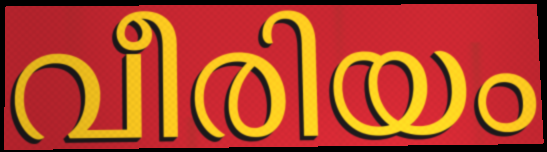
വീരിയം